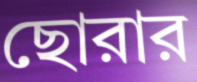
ছোরার